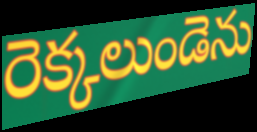
రెక్కలుండెను